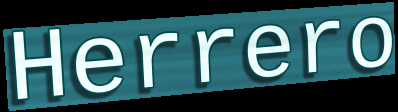
Herrero